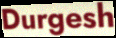
Durgesh